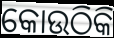
କୋଉଠିକି